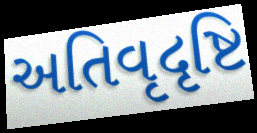
અતિવૃદૃષ્ટિ